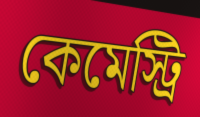
কেমেস্ট্রি